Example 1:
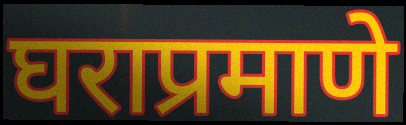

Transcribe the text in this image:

घराप्रमाणे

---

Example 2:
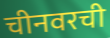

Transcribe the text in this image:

चीनवरची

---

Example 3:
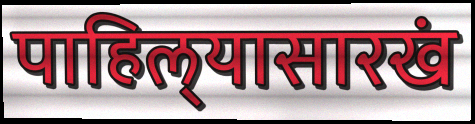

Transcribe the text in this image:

पाहिल्यासारखं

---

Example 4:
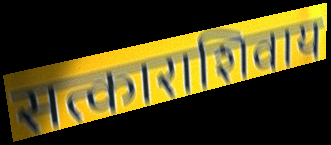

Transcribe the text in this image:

सत्काराशिवाय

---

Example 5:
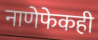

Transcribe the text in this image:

नाणेफेकही